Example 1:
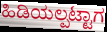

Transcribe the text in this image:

ಹಿಡಿಯಲ್ಪಟ್ಟಾಗ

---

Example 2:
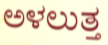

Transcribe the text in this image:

ಅಳಲುತ್ತ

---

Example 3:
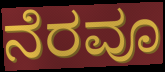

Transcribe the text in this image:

ನೆರವೂ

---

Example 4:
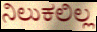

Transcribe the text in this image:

ನಿಲುಕಲಿಲ್ಲ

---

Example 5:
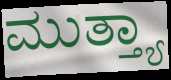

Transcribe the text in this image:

ಮುತ್ತ್ಯಾ